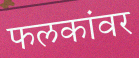
फलकांवर